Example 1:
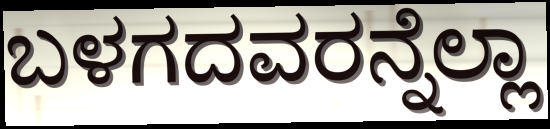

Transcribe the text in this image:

ಬಳಗದವರನ್ನೆಲ್ಲಾ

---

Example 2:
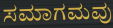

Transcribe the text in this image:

ಸಮಾಗಮವು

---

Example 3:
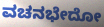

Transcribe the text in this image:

ವಚನಭೇದೋ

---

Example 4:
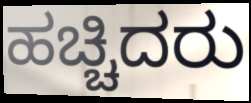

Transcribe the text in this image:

ಹಚ್ಚಿದರು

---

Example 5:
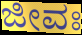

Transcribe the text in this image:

ಜೀವಃ